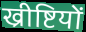
ख्रीष्टियों